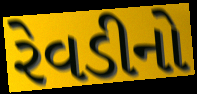
રેવડીનો